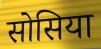
सोसिया